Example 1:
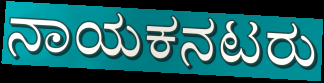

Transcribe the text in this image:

ನಾಯಕನಟರು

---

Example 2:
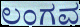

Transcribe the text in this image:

ಲಂಗವ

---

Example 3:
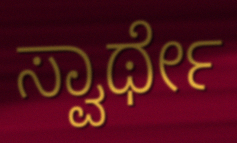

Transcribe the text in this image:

ಸ್ವಾರ್ಥೇ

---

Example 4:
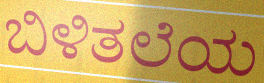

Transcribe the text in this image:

ಬಿಳಿತಲೆಯ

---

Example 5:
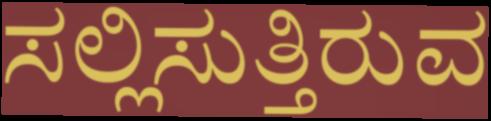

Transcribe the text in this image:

ಸಲ್ಲಿಸುತ್ತಿರುವ